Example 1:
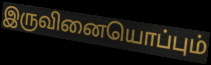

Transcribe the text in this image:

இருவினையொப்பும்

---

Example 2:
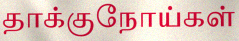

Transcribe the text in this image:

தாக்குநோய்கள்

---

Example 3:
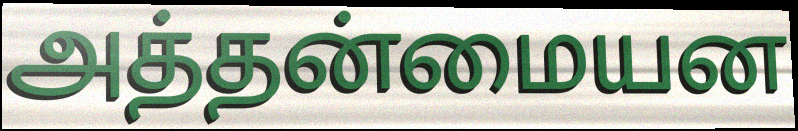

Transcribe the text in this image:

அத்தன்மையன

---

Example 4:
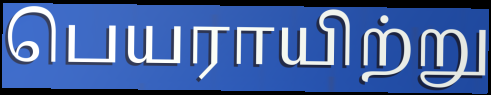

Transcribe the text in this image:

பெயராயிற்று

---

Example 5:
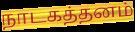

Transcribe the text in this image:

நாடகத்தனம்